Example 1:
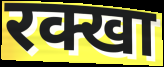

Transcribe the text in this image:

रक्खा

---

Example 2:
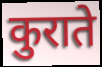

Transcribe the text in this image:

कुराते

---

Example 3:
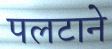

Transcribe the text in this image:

पलटाने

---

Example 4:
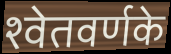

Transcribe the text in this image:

श्वेतवर्णके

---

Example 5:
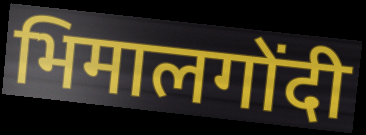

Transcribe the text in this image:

भिमालगोंदी